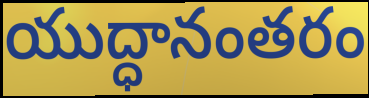
యుద్ధానంతరం